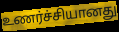
உணர்ச்சியானது